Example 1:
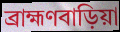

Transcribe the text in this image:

ব্রাহ্মণবাড়িয়া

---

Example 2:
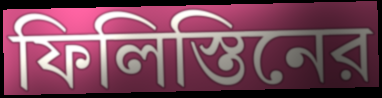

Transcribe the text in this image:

ফিলিস্তিনের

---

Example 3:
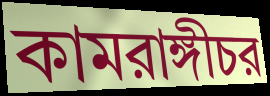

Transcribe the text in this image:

কামরাঙ্গীচর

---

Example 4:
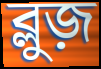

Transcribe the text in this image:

ব্লুজ়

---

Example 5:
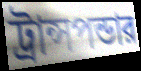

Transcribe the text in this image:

ট্রান্সপন্ডার